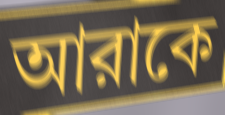
আরাকে